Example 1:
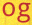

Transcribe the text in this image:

og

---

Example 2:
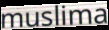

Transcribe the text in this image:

muslima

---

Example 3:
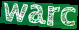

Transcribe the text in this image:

warc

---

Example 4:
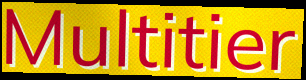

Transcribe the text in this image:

Multitier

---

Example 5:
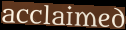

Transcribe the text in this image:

acclaimed